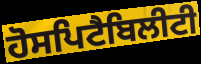
ਹੋਸਪਿਟੈਬਿਲੀਟੀ